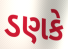
ડણકે